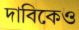
দাবিকেও